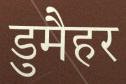
डुमैहर